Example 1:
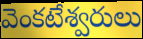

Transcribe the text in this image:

వెంకటేశ్వరులు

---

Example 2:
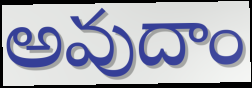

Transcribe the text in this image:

అవుదాం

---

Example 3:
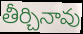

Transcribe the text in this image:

తీర్చినావు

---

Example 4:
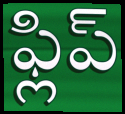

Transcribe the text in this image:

ఫ్లిప్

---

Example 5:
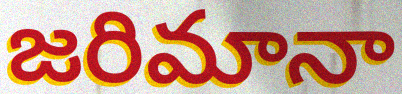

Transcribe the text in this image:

జరిమానా